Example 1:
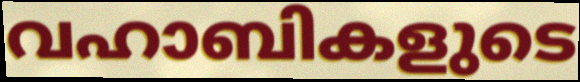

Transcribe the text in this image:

വഹാബികളുടെ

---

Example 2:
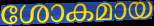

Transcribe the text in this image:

ശോകമായ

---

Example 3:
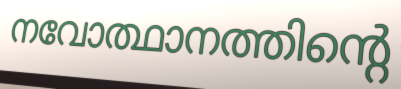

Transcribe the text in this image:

നവോത്ഥാനത്തിന്റെ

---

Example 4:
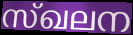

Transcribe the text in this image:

സ്ഖലന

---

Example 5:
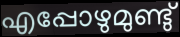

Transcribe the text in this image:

എപ്പോഴുമുണ്ടു്